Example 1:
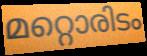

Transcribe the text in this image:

മറ്റൊരിടം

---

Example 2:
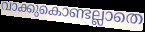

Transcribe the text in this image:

വാക്കുകൊണ്ടല്ലാതെ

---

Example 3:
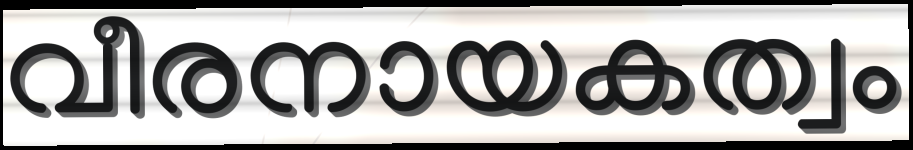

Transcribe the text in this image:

വീരനായകത്വം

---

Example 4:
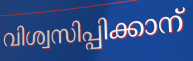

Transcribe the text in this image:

വിശ്വസിപ്പിക്കാന്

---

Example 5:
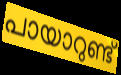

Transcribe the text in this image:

പായാറുണ്ട്